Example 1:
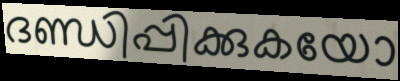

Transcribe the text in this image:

ദണ്ഡിപ്പിക്കുകയോ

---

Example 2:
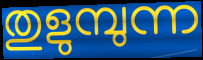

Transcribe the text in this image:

തുളുമ്പുന്ന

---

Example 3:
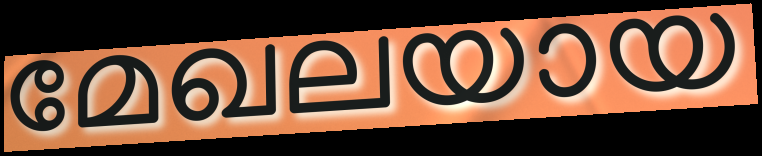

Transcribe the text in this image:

മേഖലയായ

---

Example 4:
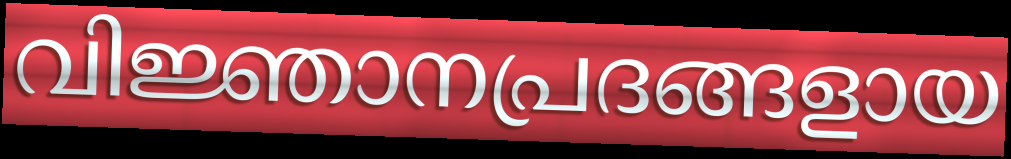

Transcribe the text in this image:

വിജ്ഞാനപ്രദങ്ങളായ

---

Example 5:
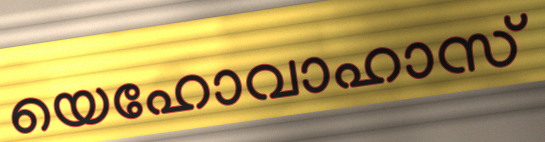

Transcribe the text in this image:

യെഹോവാഹാസ്